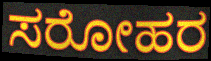
ಸರೋಹರ